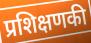
प्रशिक्षणकी